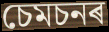
চেমচনৰ